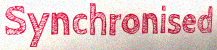
Synchronised